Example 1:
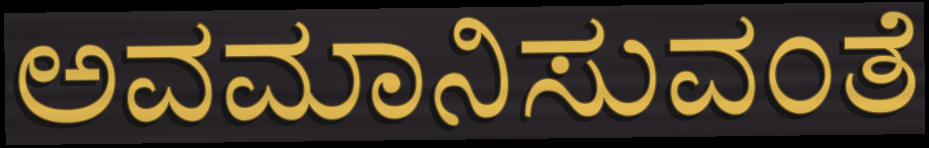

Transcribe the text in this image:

ಅವಮಾನಿಸುವಂತೆ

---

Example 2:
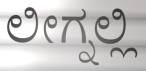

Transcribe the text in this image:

ಲೀಗ್ನಲ್ಲಿ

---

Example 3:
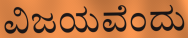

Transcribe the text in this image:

ವಿಜಯವೆಂದು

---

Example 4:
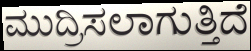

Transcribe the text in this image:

ಮುದ್ರಿಸಲಾಗುತ್ತಿದೆ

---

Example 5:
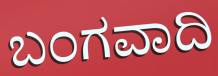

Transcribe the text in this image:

ಬಂಗವಾದಿ